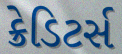
ક્રેડિટર્સ